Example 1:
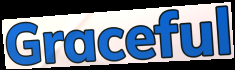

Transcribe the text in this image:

Graceful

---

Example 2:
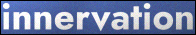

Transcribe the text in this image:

innervation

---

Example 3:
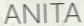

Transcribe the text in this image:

ANITA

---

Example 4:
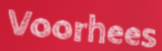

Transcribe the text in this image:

Voorhees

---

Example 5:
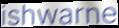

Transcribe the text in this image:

ishwarne